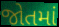
જોતમાં